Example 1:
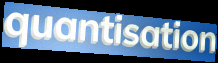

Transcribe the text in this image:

quantisation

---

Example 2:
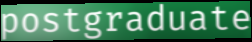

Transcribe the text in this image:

postgraduate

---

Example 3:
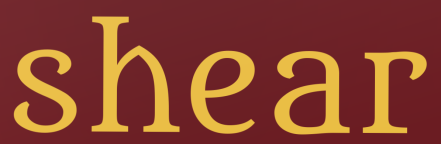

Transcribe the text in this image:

shear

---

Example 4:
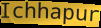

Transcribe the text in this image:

Ichhapur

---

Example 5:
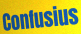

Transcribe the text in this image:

Confusius